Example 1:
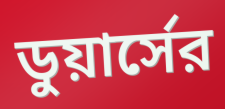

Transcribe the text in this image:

ডুয়ার্সের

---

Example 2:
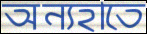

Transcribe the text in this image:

অন্যহাতে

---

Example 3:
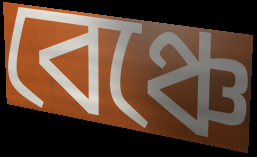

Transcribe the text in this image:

বেঞ্চে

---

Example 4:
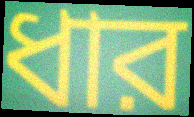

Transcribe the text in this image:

ধার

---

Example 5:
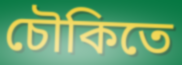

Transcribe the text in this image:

চৌকিতে